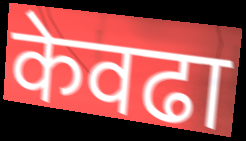
केवढा